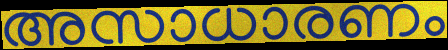
അസാധാരണം